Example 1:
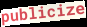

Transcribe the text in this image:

publicize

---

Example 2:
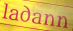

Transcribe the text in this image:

ladann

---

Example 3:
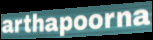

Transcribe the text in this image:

arthapoorna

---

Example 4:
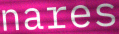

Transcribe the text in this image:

nares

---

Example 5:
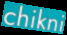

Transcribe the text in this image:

chikni